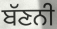
ਬੱਣਨੀ